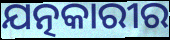
ଯତ୍ନକାରୀର